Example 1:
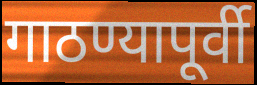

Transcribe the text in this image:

गाठण्यापूर्वी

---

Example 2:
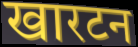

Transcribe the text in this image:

खारटन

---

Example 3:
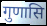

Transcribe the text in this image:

गुणासि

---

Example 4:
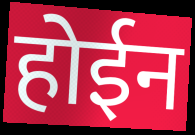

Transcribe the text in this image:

होईन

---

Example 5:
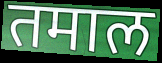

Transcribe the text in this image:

तमाल